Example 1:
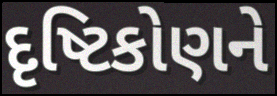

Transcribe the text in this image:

દૃષ્ટિકોણને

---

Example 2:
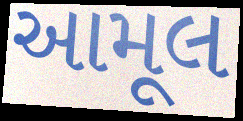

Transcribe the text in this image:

આમૂલ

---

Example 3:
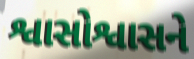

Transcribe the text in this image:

શ્વાસોશ્વાસને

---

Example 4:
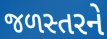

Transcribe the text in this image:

જળસ્તરને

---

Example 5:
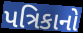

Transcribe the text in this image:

પત્રિકાનો